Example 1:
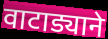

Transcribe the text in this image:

वाटाड्याने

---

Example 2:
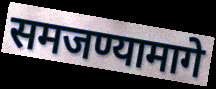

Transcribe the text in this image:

समजण्यामागे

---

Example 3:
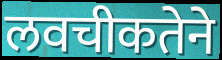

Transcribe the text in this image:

लवचीकतेने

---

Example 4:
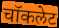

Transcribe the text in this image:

चॉकलेट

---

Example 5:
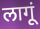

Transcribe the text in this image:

लागूं